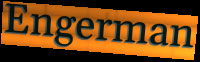
Engerman